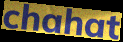
chahat